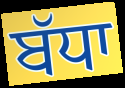
ਬੱਧਾ